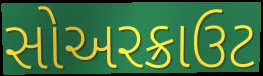
સોઅરક્રાઉટ